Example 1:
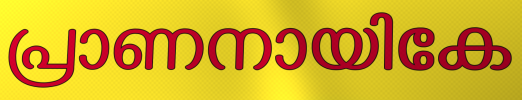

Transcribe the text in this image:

പ്രാണനായികേ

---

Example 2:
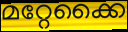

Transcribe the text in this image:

മറ്റേക്കൈ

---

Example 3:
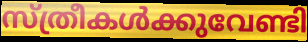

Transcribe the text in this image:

സ്ത്രീകൾക്കുവേണ്ടി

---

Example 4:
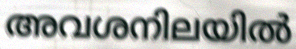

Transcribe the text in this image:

അവശനിലയിൽ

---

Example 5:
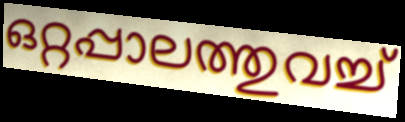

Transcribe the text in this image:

ഒറ്റപ്പാലത്തുവച്ച്